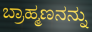
ಬ್ರಾಹ್ಮಣನನ್ನು